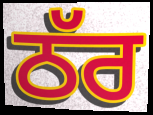
ਠੱਰ